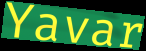
Yavar